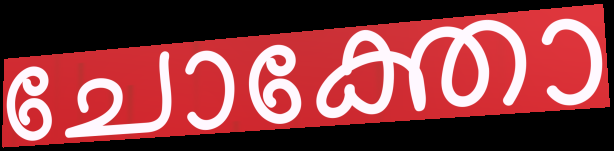
ചോക്തോ